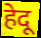
हेदू